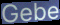
Gebe